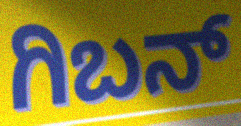
ಗಿಬನ್